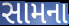
સામના